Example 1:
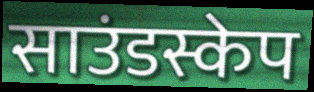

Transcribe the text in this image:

साउंडस्केप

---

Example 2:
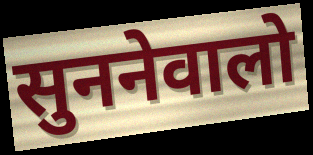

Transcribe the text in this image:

सुननेवालो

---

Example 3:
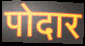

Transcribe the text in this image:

पोदार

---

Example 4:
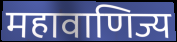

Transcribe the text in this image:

महावाणिज्य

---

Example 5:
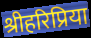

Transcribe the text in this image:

श्रीहरिप्रिया